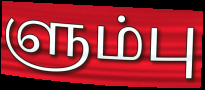
ளும்பு